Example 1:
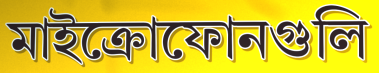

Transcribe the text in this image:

মাইক্রোফোনগুলি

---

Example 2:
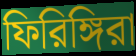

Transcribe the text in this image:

ফিরিঙ্গিরা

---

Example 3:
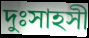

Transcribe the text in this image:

দুঃসাহসী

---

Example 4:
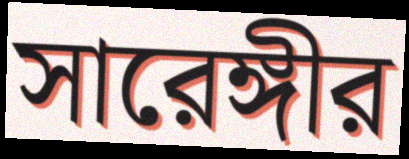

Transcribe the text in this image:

সারেঙ্গীর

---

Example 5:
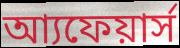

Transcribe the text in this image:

আ্যফেয়ার্স